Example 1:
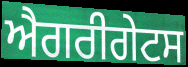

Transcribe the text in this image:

ਐਗਰੀਗੇਟਸ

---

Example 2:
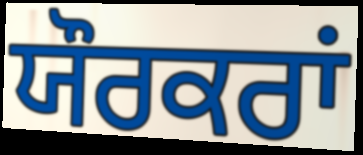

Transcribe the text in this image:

ਯੌਰਕਰਾਂ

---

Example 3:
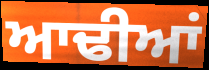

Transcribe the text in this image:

ਆਢੀਆਂ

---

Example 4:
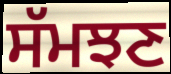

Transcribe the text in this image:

ਸੱਮਝਣ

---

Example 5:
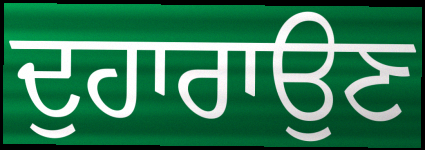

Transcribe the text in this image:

ਦੁਹਾਰਾਉਣ